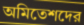
অমিতেশদের